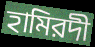
হামিরদী